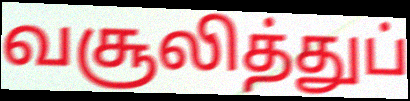
வசூலித்துப்